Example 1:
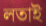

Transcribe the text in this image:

লতাই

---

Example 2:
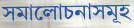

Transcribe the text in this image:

সমালোচনাসমূহ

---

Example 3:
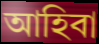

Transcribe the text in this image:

আহিবা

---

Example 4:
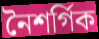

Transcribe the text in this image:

নৈশৰ্গিক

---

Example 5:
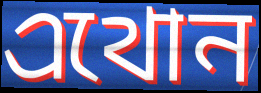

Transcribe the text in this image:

এথোন